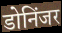
डोनिंजर